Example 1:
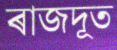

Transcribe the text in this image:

ৰাজদূত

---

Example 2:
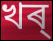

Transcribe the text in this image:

খৰ্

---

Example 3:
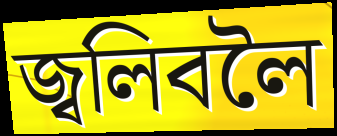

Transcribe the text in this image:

জ্বলিবলৈ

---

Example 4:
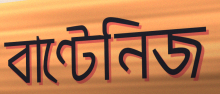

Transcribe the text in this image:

বাণ্টেনিজ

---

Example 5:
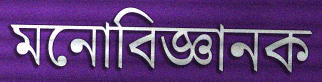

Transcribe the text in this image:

মনোবিজ্ঞানক